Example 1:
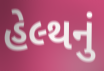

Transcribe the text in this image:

હેલ્થનું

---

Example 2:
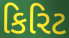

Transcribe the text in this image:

કિરિટ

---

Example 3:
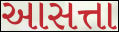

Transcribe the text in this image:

આસત્તા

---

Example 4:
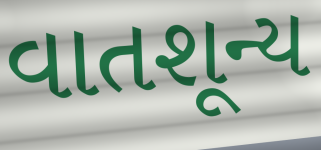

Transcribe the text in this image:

વાતશૂન્ય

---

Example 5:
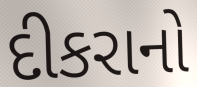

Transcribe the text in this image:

દીકરાનો